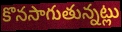
కొనసాగుతున్నట్లు